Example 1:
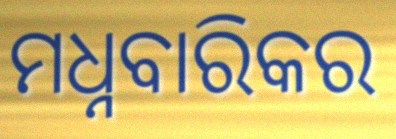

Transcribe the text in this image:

ମଧ୍ନବାରିକର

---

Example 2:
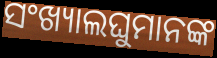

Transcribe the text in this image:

ସଂଖ୍ୟାଲଘୁମାନଙ୍କ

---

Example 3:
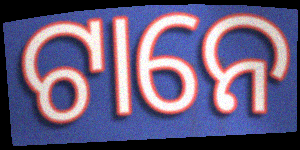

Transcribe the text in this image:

ଟାନେ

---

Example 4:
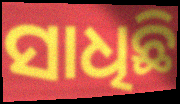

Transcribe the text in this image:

ସାଧିଛି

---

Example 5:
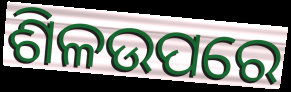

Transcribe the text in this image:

ଶିଳଉପରେ